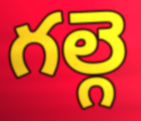
గల్గె